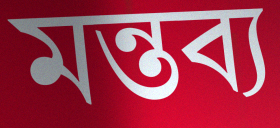
মন্তব্য